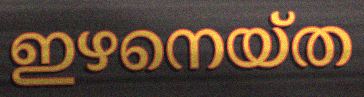
ഇഴനെയ്ത